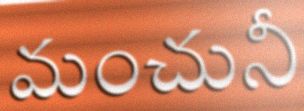
మంచునీ